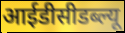
आईडीसीडब्ल्यू